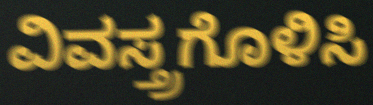
ವಿವಸ್ತ್ರಗೊಳಿಸಿ